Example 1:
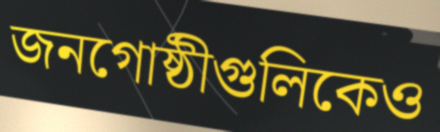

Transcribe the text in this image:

জনগোষ্ঠীগুলিকেও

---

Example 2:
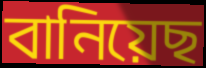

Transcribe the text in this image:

বানিয়েছ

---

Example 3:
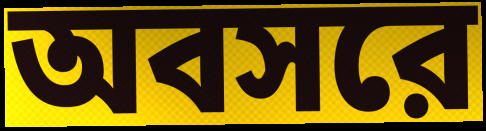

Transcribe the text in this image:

অবসরে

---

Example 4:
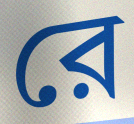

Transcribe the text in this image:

রে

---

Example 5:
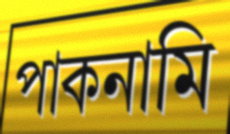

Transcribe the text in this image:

পাকনামি